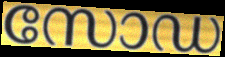
സോഡ